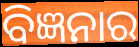
ବିଜ୍ଞନାର